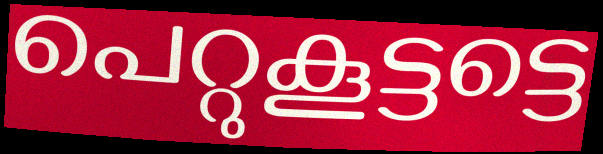
പെറ്റുകൂട്ടട്ടെ